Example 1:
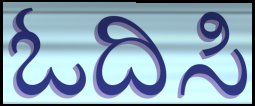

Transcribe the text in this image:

ಓದಿಸಿ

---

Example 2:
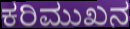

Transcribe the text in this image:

ಕರಿಮುಖನ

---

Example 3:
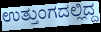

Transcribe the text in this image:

ಉತ್ತುಂಗದಲ್ಲಿದ್ದ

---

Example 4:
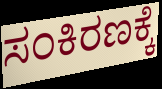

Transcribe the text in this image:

ಸಂಕಿರಣಕ್ಕೆ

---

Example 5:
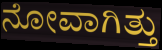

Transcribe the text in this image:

ನೋವಾಗಿತ್ತು